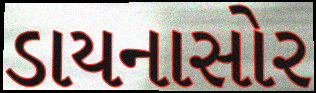
ડાયનાસોર